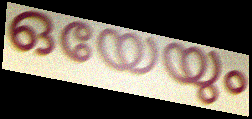
ഒയേയും